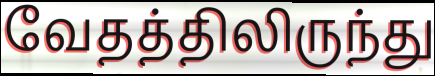
வேதத்திலிருந்து